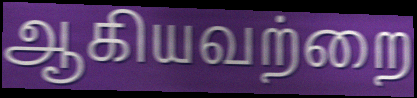
ஆகியவற்றை